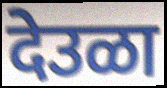
देउळा